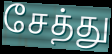
சேத்து